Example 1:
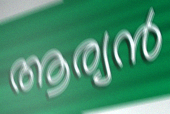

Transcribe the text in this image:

ആര്യൻ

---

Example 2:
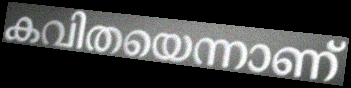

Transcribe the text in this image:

കവിതയെന്നാണ്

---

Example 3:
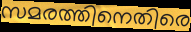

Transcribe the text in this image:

സമരത്തിനെതിരെ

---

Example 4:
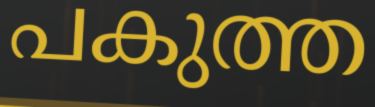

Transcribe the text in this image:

പകുത്ത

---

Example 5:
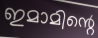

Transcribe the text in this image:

ഇമാമിന്റെ